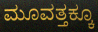
ಮೂವತ್ತಕ್ಕೂ